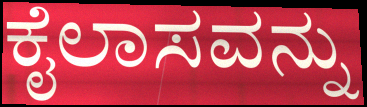
ಕೈಲಾಸವನ್ನು